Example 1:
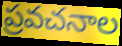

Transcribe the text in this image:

ప్రవచనాల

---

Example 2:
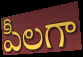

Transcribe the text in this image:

పీలగా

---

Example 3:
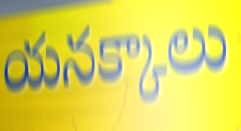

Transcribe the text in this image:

యనక్కాలు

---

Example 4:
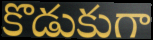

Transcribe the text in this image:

కొడుకుగా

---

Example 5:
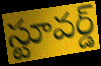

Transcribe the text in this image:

స్టూవర్డ్